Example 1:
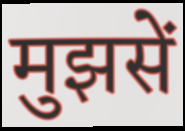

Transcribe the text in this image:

मुझसें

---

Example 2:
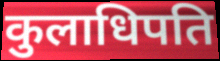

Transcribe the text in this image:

कुलाधिपति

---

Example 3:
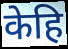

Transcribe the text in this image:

केहि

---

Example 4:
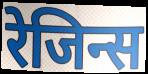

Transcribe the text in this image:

रेजिन्स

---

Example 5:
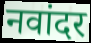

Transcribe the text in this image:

नवांदर